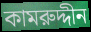
কামরুদ্দীন